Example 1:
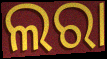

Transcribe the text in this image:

ଲରା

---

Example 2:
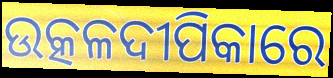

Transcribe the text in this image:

ଉତ୍କଳଦୀପିକାରେ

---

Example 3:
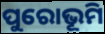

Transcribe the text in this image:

ପୁରୋଭୂମି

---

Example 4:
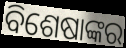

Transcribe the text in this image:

ବିଶେଷାଙ୍କର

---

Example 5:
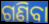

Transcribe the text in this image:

ଗଣିବା